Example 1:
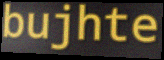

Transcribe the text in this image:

bujhte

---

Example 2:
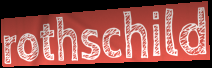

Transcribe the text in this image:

rothschild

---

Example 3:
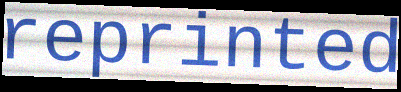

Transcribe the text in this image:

reprinted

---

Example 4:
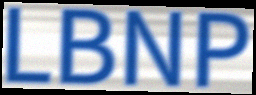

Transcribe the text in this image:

LBNP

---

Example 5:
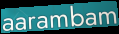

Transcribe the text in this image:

aarambam